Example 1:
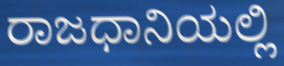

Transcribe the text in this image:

ರಾಜಧಾನಿಯಲ್ಲಿ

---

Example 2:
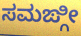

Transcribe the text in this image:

ಸಮಙ್ಗೀ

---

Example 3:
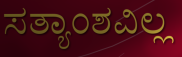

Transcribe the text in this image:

ಸತ್ಯಾಂಶವಿಲ್ಲ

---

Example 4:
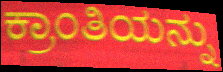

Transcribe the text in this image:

ಕ್ರಾಂತಿಯನ್ನು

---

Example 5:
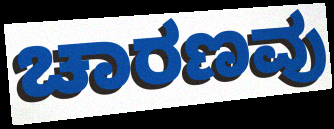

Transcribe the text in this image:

ಚಾರಣವು